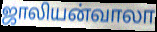
ஜாலியன்வாலா